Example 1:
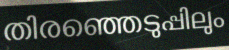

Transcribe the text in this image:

തിരഞ്ഞെടുപ്പിലും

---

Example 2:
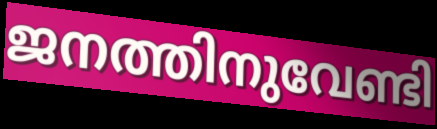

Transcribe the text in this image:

ജനത്തിനുവേണ്ടി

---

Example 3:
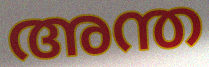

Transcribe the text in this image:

അന്ത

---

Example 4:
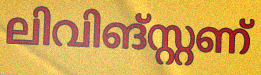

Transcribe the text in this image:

ലിവിങ്സ്റ്റണ്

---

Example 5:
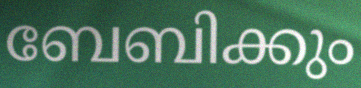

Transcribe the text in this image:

ബേബിക്കും